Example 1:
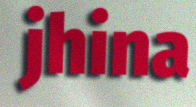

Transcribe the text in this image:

jhina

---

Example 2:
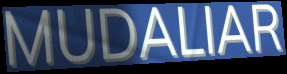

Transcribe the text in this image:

MUDALIAR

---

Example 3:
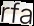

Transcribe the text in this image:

rfa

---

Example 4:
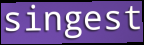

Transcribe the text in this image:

singest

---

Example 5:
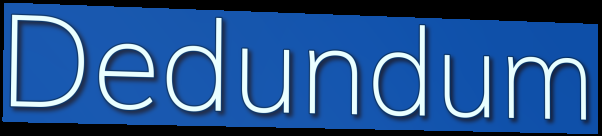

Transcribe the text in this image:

Dedundum